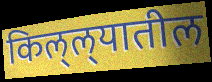
किल्ल्यातील